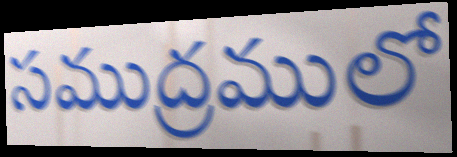
సముద్రములో